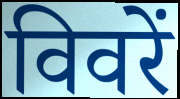
विवरें